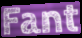
Fant